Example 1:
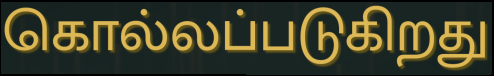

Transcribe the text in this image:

கொல்லப்படுகிறது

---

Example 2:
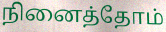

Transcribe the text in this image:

நினைத்தோம்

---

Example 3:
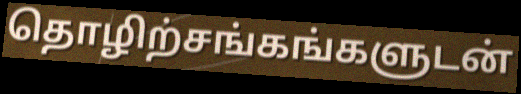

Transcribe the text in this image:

தொழிற்சங்கங்களுடன்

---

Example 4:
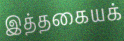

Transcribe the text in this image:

இத்தகையக்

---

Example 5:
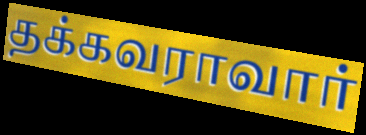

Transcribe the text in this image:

தக்கவராவார்